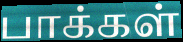
பாக்கள்